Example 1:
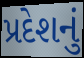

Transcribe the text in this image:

પ્રદેશનું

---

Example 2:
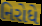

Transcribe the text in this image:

નિરોધે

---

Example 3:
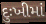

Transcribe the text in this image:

દુઃખીમાં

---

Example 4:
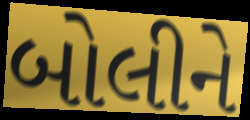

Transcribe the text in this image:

બોલીને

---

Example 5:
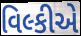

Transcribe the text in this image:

વિલ્કીએ